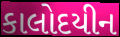
કાલોદયીન